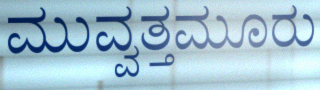
ಮುವ್ವತ್ತಮೂರು